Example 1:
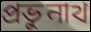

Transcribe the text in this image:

প্রভুনাথ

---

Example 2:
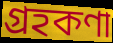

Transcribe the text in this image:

গ্রহকণা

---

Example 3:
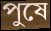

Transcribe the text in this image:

পুষে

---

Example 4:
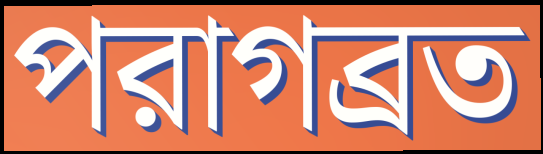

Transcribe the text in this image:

পরাগব্রত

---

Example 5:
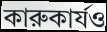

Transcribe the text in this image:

কারুকার্যও